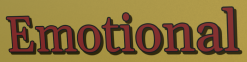
Emotional